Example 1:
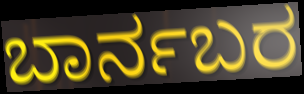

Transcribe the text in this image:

ಬಾರ್ನಬರ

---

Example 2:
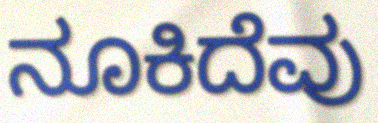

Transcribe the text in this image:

ನೂಕಿದೆವು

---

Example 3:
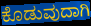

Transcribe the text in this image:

ಕೊಡುವುದಾಗಿ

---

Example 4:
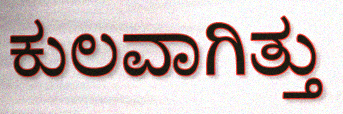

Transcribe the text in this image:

ಕುಲವಾಗಿತ್ತು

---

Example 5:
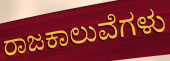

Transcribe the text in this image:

ರಾಜಕಾಲುವೆಗಳು